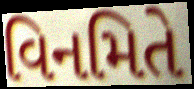
વિનમિતે